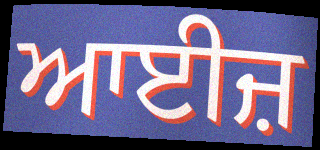
ਆਈਜ਼